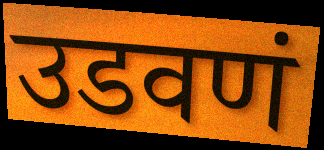
उडवणं